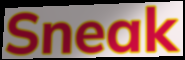
Sneak